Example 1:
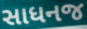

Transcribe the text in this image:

સાધનજ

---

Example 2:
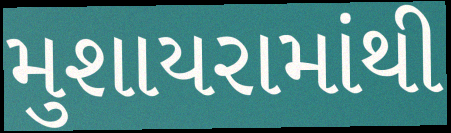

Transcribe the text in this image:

મુશાયરામાંથી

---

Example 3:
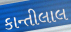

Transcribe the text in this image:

કાન્તીલાલ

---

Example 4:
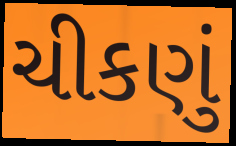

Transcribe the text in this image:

ચીકણું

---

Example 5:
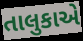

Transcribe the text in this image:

તાલુકાએ